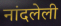
नांदलेली